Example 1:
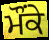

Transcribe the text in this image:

ਮੌੰਕੇ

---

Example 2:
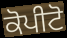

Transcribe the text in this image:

ਕੋਪੀਟੋ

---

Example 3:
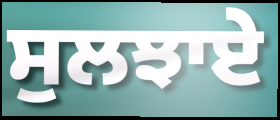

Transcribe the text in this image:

ਸੁਲਝਾਏ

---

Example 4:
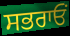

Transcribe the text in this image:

ਸਭਰਾਓਂ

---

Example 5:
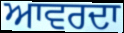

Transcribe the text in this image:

ਆਵਰਦਾ